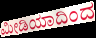
ಮೀಡಿಯಾದಿಂದ